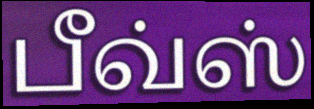
பீவ்ஸ்